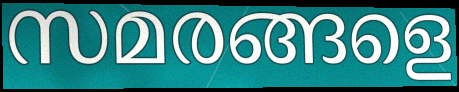
സമരങ്ങളെ